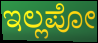
ಇಲ್ಲಪೋ